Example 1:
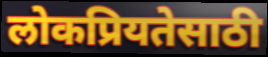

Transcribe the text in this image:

लोकप्रियतेसाठी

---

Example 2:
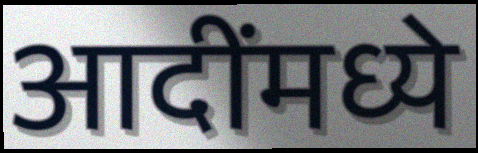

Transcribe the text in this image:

आदींमध्ये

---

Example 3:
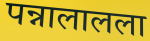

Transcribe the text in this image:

पन्नालालला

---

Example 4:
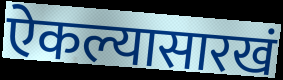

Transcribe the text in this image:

ऐकल्यासारखं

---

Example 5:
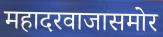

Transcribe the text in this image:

महादरवाजासमोर